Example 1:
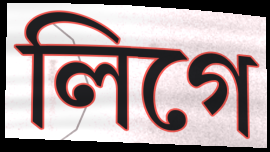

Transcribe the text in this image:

লিগে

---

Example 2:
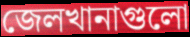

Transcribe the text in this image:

জেলখানাগুলো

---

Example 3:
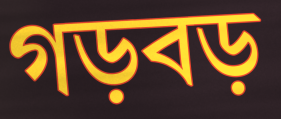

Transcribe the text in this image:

গড়বড়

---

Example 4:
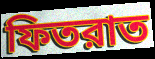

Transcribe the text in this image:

ফিতরাত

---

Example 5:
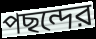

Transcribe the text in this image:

পছন্দের